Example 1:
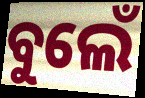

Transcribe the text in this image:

ବୁଲେଁ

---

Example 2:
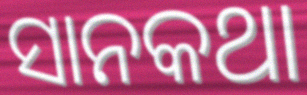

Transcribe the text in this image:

ସାନକଥା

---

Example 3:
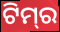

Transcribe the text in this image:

ଟିମ୍‌ର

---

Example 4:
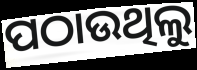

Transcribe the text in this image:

ପଠାଉଥିଲୁ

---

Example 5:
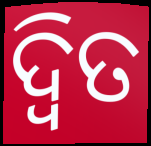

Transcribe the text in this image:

ଦ୍ୱିତ